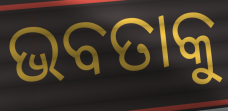
ଭବତାକୁ